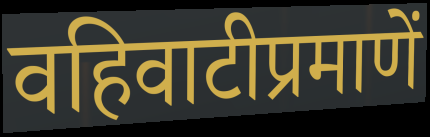
वहिवाटीप्रमाणें